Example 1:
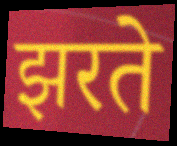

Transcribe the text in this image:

झरते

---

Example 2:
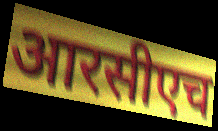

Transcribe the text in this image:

आरसीएच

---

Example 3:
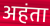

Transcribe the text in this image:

अहंता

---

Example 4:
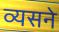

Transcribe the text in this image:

व्यसने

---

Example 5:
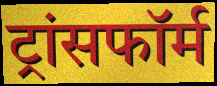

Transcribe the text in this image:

ट्रांसफॉर्म